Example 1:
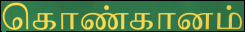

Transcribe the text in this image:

கொண்கானம்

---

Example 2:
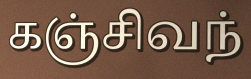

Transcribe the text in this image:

கஞ்சிவந்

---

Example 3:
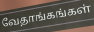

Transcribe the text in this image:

வேதாங்கங்கள்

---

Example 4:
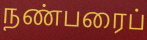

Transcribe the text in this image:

நண்பரைப்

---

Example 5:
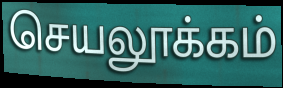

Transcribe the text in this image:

செயலூக்கம்